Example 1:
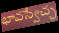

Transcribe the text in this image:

భావస్వేచ్ఛ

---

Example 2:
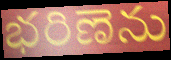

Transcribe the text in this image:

భరిణెను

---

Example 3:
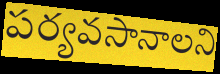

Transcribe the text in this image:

పర్యవసానాలని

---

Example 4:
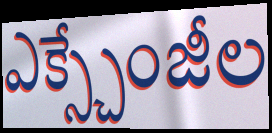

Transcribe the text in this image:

ఎక్స్చేంజీల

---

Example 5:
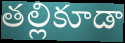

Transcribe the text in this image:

తల్లికూడా